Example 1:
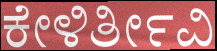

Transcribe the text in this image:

ಕೇಳಿರ್ತೀವಿ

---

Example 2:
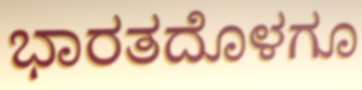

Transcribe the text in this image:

ಭಾರತದೊಳಗೂ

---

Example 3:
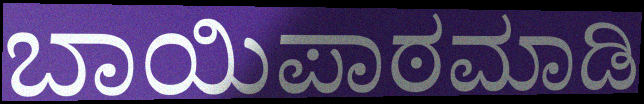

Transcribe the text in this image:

ಬಾಯಿಪಾಠಮಾಡಿ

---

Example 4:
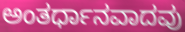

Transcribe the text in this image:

ಅಂತರ್ಧಾನವಾದವು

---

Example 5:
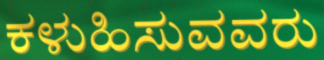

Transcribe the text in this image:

ಕಳುಹಿಸುವವರು